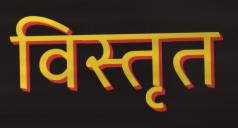
विस्तृत